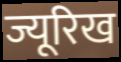
ज्यूरिख